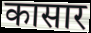
कासार